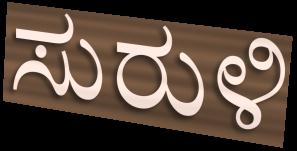
ಸುರುಳಿ